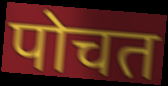
पोचत